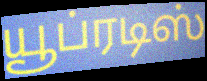
யூப்ரடிஸ்